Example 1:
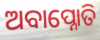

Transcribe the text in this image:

ଅବାପ୍ନୋତି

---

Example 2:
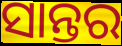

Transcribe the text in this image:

ସାନ୍ତର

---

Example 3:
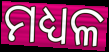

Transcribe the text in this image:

ମଧ୍ୟଳ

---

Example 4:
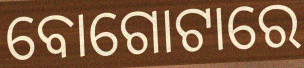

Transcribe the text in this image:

ବୋଗୋଟାରେ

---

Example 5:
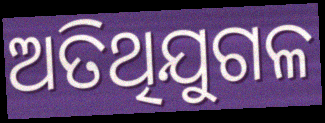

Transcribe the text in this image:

ଅତିଥିଯୁଗଳ